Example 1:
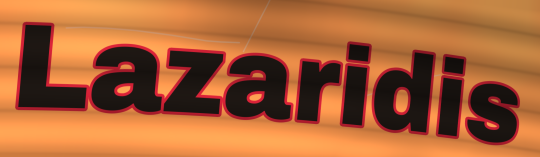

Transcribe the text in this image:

Lazaridis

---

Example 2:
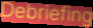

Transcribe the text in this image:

Debriefing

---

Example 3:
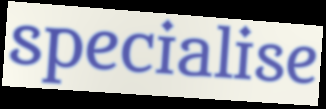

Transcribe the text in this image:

specialise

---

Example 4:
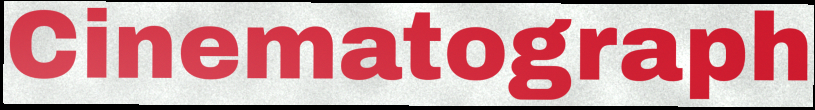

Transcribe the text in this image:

Cinematograph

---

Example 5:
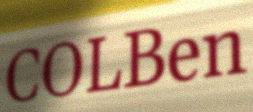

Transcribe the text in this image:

COLBen